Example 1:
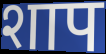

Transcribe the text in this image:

शाप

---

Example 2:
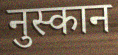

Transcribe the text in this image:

नुस्कान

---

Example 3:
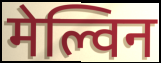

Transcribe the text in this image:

मेल्विन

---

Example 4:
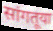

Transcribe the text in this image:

सांगतूया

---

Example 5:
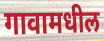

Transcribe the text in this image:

गावामधील